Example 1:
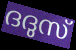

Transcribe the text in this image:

ദദുസ്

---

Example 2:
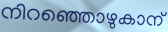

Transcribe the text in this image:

നിറഞ്ഞൊഴുകാന്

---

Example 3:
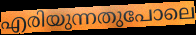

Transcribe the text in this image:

എരിയുന്നതുപോലെ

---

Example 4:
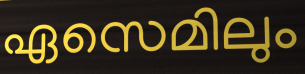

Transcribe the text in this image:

ഏസെമിലും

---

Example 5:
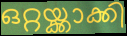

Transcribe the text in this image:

ഒറ്റയ്ക്കാക്കി